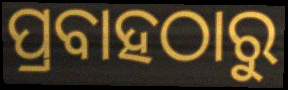
ପ୍ରବାହଠାରୁ